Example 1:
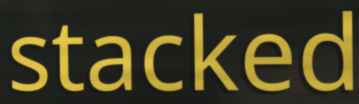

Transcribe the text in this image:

stacked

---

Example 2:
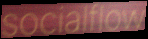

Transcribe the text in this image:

socialflow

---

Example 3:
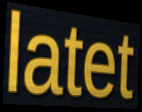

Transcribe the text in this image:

latet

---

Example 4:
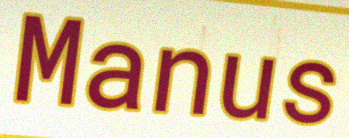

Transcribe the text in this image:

Manus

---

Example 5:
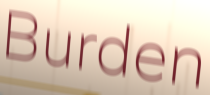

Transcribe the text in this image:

Burden